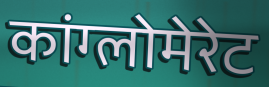
कांग्लोमेरेट